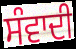
ਸੰਵਾਦੀ